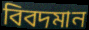
বিবদমান